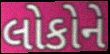
લોકોને